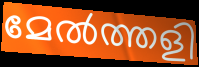
മേൽത്തളി